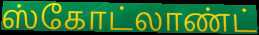
ஸ்கோட்லாண்ட்